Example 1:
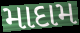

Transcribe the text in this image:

માદામ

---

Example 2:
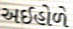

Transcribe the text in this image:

અઈહોળે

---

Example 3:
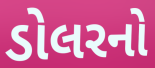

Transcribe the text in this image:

ડોલરનો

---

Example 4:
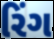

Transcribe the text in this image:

રિંગ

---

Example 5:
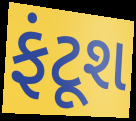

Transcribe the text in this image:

ફંટૂશ